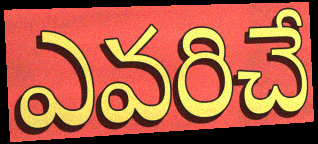
ఎవరిచే